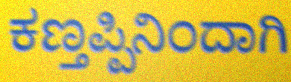
ಕಣ್ತಪ್ಪಿನಿಂದಾಗಿ